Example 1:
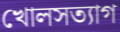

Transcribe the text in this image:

খোলসত্যাগ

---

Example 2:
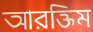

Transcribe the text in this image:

আরক্তিম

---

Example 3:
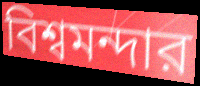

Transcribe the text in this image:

বিশ্বমন্দার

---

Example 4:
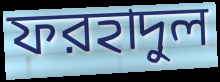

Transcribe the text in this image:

ফরহাদুল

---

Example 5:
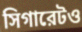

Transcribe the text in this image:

সিগারেটও